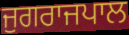
ਜੁਗਰਾਜਪਾਲ